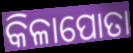
କିଳାପୋତା